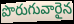
పొరుగువారైన